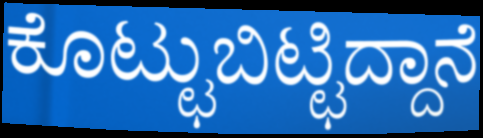
ಕೊಟ್ಟುಬಿಟ್ಟಿದ್ದಾನೆ